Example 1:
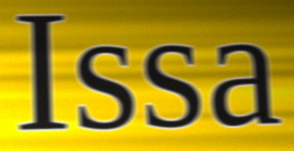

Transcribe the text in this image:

Issa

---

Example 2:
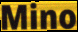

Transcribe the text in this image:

Mino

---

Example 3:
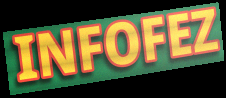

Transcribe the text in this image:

INFOFEZ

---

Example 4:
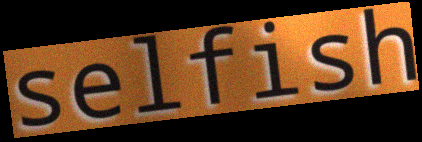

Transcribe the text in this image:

selfish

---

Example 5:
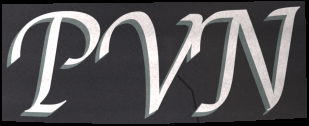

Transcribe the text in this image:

PVN